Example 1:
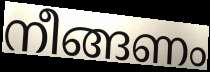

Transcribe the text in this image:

നീങ്ങണം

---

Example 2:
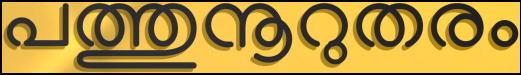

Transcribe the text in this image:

പത്തുനൂറുതരം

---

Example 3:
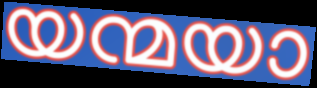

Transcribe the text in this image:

യന്മയാ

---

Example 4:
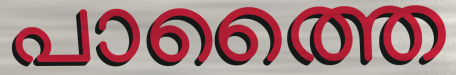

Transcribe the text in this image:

പാത്തൈ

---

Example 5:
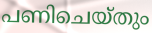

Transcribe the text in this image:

പണിചെയ്തും